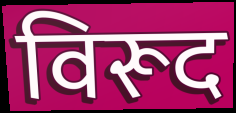
विरूद